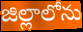
జిల్లాలోను